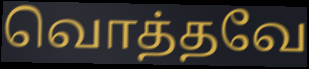
வொத்தவே